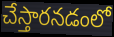
చేస్తారనడంలో